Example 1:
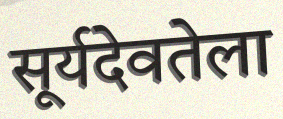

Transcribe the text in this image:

सूर्यदेवतेला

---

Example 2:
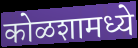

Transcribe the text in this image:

कोळशामध्ये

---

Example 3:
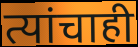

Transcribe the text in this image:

त्यांचाही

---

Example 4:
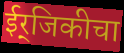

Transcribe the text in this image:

ईर्जिकीचा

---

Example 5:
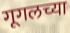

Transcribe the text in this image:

गूगलच्या